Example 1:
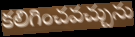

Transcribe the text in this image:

కలిగించవచ్చును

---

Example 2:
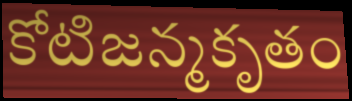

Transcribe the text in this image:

కోటిజన్మకృతం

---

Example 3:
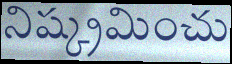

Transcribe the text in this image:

నిష్క్రమించు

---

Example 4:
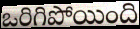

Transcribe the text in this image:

ఒరిగిపోయింది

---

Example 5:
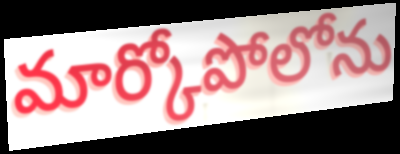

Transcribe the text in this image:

మార్కోపోలోను